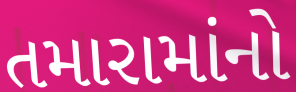
તમારામાંનો